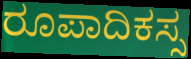
ರೂಪಾದಿಕಸ್ಸ